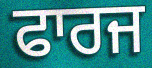
ਫਾਰਜ